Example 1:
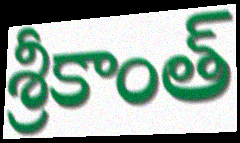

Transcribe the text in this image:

శ్రీకాంత్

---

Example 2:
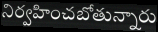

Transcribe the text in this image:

నిర్వహించబోతున్నారు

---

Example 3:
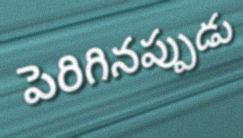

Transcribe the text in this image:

పెరిగినప్పుడు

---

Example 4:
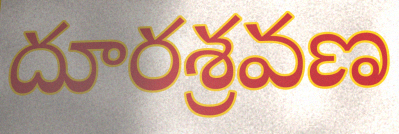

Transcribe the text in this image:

దూరశ్రవణ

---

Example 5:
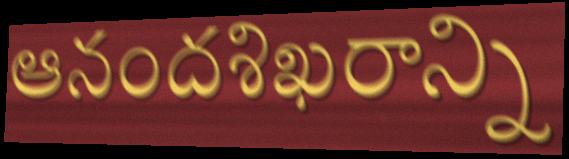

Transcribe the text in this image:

ఆనందశిఖరాన్ని